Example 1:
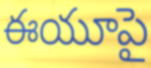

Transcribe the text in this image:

ఈయూపై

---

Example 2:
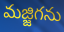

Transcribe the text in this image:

మజ్జిగను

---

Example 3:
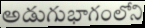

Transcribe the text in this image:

అడుగుభాగంలోని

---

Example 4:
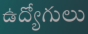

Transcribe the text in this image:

ఉద్యోగులు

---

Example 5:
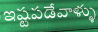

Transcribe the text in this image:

ఇష్టపడేవాళ్ళు